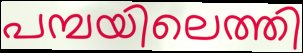
പമ്പയിലെത്തി